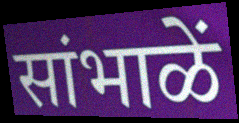
सांभाळें